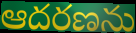
ఆదరణను